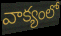
వాక్యంలో